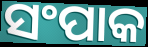
ସଂପାକ